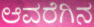
ಆವರೆಗಿನ